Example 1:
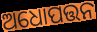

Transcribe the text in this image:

ଅଧୋପତ୍ତନ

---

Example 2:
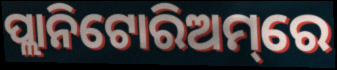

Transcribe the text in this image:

ପ୍ଲାନିଟୋରିଅମ୍‌ରେ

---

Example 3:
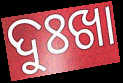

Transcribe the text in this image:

ଦୁଃଖା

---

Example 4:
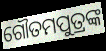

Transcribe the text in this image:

ଗୌତମପୁତ୍ରଙ୍କ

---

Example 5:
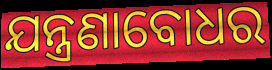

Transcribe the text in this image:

ଯନ୍ତ୍ରଣାବୋଧର